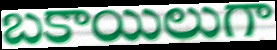
బకాయిలుగా